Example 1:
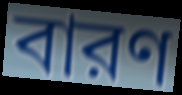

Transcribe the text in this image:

বারণ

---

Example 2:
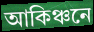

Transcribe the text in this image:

আকিঞ্চনে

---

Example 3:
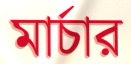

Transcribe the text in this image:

মার্চার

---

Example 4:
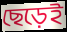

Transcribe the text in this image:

ছেড়েই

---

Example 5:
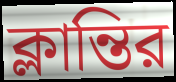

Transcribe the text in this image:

ক্লান্তির